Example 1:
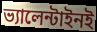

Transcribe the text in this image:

ভ্যালেন্টাইনই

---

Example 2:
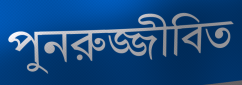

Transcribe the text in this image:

পুনরুজ্জীবিত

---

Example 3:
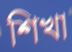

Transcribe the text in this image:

শিখা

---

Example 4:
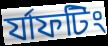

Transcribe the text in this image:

র্যাফটিং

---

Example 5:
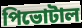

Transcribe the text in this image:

পিভোটাল